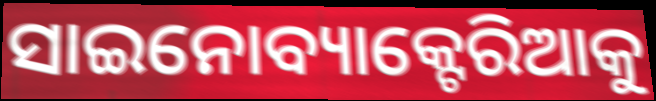
ସାଇନୋବ୍ୟାକ୍ଟେରିଆକୁ